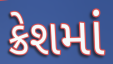
ક્રેશમાં